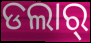
ଡଲାର୍